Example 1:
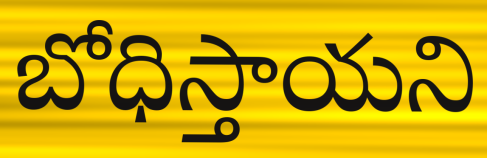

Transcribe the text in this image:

బోధిస్తాయని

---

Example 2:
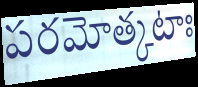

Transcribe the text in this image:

పరమోత్కటాః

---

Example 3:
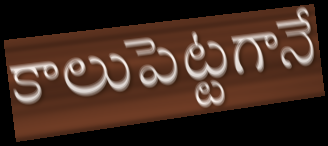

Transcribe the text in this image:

కాలుపెట్టగానే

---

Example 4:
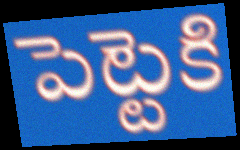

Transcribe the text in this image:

పెట్టెకి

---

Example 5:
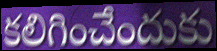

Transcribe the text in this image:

కలిగించేందుకు